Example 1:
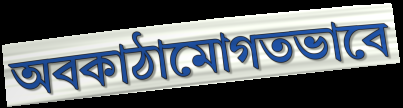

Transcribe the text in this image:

অবকাঠামোগতভাবে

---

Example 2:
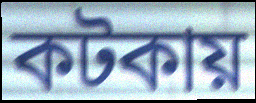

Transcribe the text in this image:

কটকায়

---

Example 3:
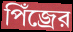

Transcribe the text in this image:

পিঁজ্রের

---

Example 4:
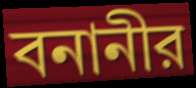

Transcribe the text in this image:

বনানীর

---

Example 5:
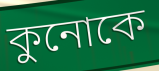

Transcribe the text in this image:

কুনোকে